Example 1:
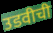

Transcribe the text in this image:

उडवीची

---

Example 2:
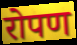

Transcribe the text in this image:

रोपण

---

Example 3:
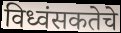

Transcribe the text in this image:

विध्वंसकतेचे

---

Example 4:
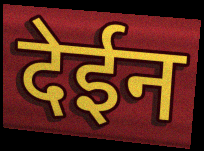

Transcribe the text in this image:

देईन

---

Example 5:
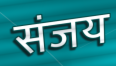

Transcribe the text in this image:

संजय